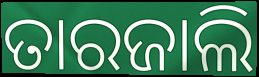
ତାରଜାଲି